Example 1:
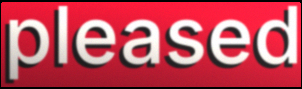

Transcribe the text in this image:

pleased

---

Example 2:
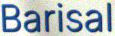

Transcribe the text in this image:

Barisal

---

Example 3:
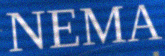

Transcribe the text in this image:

NEMA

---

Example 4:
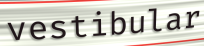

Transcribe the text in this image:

vestibular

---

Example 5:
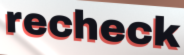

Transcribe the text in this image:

recheck